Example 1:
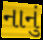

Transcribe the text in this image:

નાનું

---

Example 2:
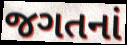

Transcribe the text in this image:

જગતનાં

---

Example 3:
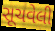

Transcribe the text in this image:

સૂચવેલી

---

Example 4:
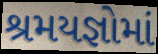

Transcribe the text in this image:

શ્રમયજ્ઞોમાં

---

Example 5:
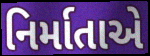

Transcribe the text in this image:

નિર્માતાએ